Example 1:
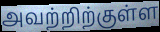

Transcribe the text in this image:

அவற்றிற்குள்ள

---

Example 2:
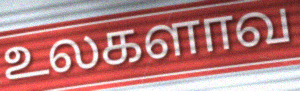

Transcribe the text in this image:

உலகளாவ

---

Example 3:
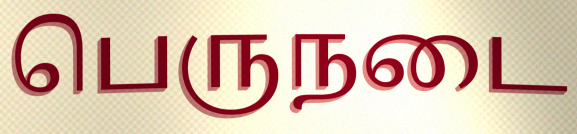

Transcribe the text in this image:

பெருநடை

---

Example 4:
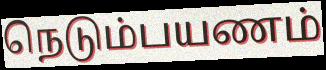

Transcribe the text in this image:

நெடும்பயணம்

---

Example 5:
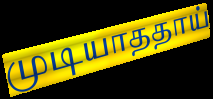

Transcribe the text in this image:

முடியாததாய்